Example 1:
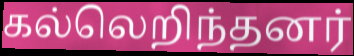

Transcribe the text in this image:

கல்லெறிந்தனர்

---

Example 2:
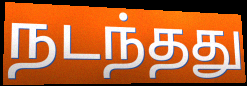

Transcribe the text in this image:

நடந்தது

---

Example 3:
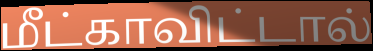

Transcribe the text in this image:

மீட்காவிட்டால்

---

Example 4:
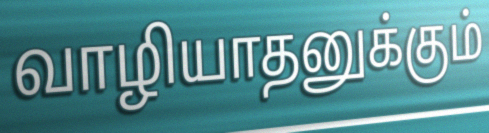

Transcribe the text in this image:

வாழியாதனுக்கும்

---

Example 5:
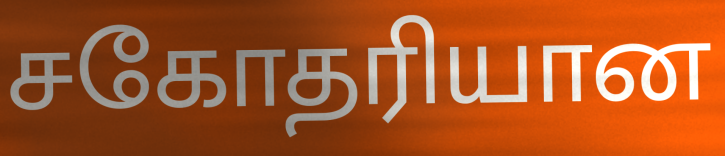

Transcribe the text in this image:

சகோதரியான